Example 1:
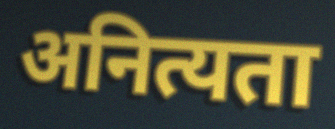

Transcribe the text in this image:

अनित्यता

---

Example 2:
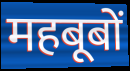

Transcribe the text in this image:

महबूबों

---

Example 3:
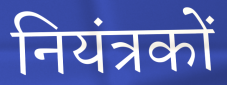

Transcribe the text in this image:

नियंत्रकों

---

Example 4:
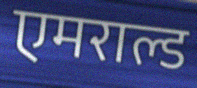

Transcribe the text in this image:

एमराल्‍ड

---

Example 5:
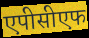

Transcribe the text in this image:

एपीसीएफ